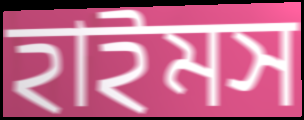
হাইমস